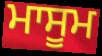
ਮਾਸੂਮ